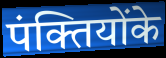
पंक्तियोंके